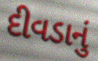
દીવડાનું